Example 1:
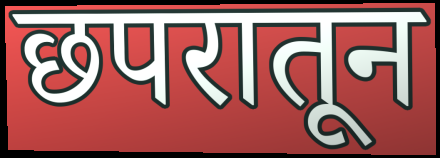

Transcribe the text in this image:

छपरातून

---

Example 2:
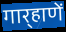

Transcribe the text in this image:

गार्‍हाणें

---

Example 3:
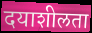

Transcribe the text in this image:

दयाशीलता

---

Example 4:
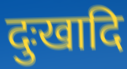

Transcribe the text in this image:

दुःखादि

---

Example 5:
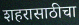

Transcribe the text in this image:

शहरासाठीचा